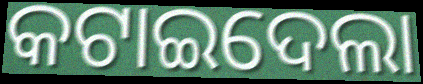
କଟାଇଦେଲା